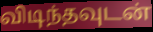
விடிந்தவுடன்